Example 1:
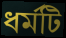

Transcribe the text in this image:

ধর্মটি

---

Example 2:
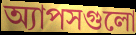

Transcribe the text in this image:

অ্যাপসগুলো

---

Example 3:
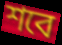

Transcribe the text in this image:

শবে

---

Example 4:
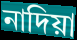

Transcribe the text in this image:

নাদিয়া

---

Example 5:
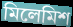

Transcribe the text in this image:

মিলেমিশ